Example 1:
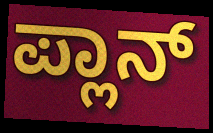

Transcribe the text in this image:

ಪ್ಲಾನ್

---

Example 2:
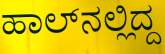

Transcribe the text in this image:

ಹಾಲ್‌ನಲ್ಲಿದ್ದ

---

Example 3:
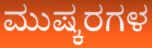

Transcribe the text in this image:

ಮುಷ್ಕರಗಳ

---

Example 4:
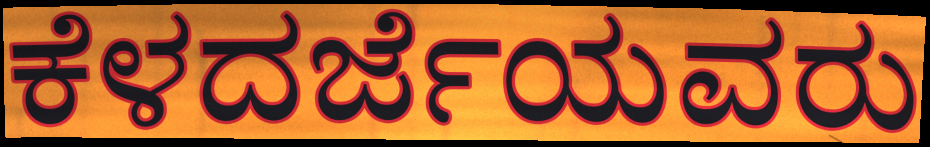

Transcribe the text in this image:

ಕೆಳದರ್ಜೆಯವರು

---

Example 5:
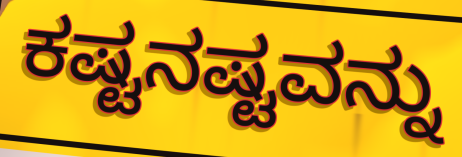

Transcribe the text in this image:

ಕಷ್ಟನಷ್ಟವನ್ನು